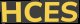
HCES